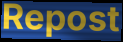
Repost